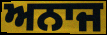
ਅਨਾਜ